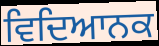
ਵਿਦਿਆਨਕ